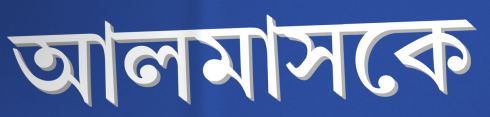
আলমাসকে